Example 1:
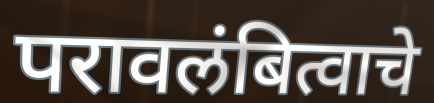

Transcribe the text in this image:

परावलंबित्वाचे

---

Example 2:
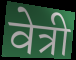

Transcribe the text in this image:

वेत्री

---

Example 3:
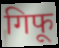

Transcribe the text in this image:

गिफू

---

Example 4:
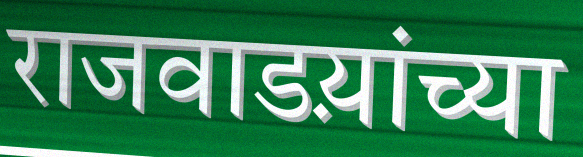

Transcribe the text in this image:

राजवाडय़ांच्या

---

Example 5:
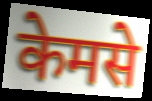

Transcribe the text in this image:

केमसे